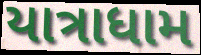
યાત્રાધામ